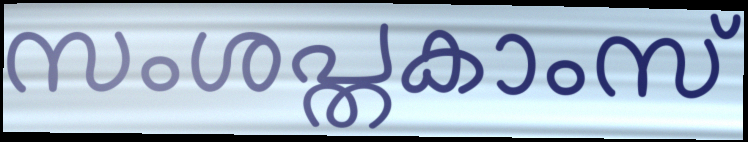
സംശപ്തകാംസ്